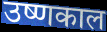
उष्णकाल